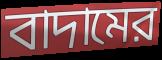
বাদামের